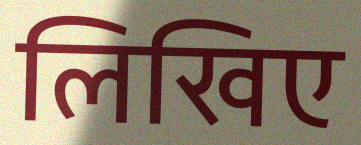
लिखिए